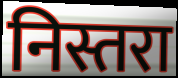
निस्तरा